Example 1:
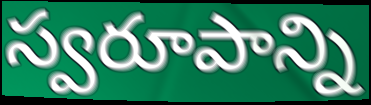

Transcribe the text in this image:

స్వరూపాన్ని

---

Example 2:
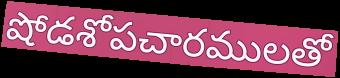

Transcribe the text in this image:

షోడశోపచారములతో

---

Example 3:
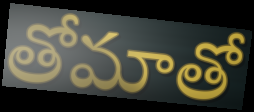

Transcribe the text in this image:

తోమాతో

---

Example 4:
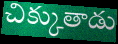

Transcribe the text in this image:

చిక్కుతాడు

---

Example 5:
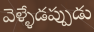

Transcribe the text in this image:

వెళ్ళేడప్పుడు